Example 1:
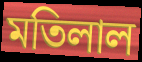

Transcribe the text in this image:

মতিলাল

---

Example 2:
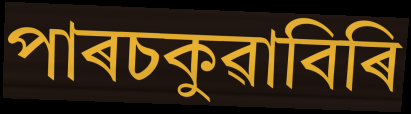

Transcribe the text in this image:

পাৰচকুৱাবিৰি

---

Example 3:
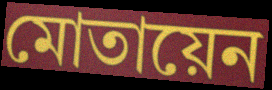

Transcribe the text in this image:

মোতায়েন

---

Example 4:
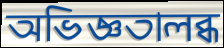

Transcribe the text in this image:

অভিজ্ঞতালব্ধ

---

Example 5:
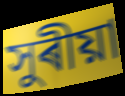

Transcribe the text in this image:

সুৰীয়া